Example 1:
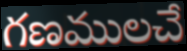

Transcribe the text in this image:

గణములచే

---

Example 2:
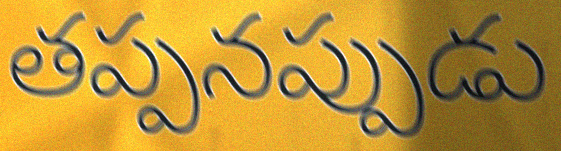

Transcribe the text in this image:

తప్పనప్పుడు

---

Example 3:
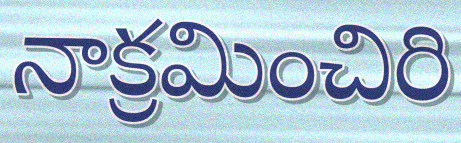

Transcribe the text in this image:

నాక్రమించిరి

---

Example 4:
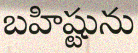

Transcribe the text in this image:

బహిష్టును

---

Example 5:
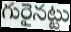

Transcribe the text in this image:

గురైనట్టు